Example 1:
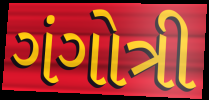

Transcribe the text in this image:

ગંગોત્રી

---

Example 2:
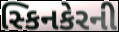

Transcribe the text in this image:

સ્કિનકેરની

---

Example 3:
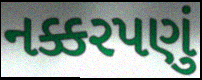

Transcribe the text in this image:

નક્કરપણું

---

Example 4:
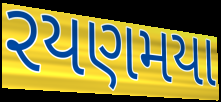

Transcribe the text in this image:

રયણમયા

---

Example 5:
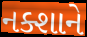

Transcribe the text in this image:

નક્શાને